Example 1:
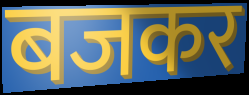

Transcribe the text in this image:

बजकर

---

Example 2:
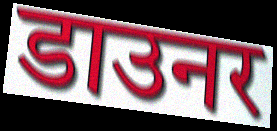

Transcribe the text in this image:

डाउनर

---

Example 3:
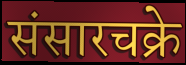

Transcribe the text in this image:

संसारचक्रे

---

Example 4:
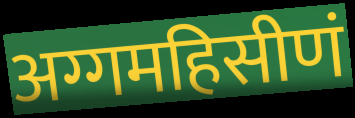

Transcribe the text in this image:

अग्गमहिसीणं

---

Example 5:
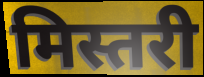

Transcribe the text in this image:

मिस्तरी